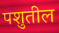
पशुतील